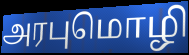
அரபுமொழி